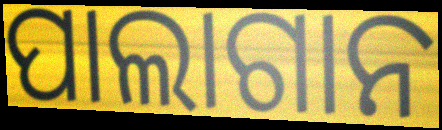
ପାଲାଗାନ